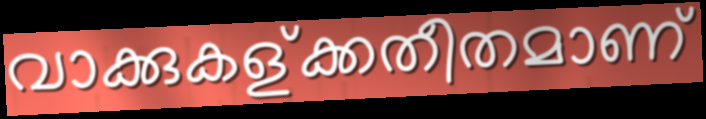
വാക്കുകള്ക്കതീതമാണ്